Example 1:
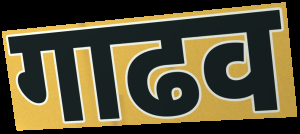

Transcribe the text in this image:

गाढव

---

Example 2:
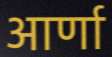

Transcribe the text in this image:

आर्णा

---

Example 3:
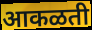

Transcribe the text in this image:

आकळती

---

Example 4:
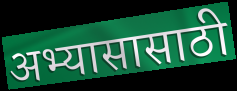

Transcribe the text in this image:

अभ्यासासाठी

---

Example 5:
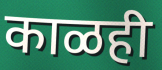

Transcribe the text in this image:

काळही